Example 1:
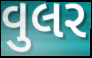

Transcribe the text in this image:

વુલર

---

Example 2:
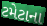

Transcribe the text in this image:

ટમેટાના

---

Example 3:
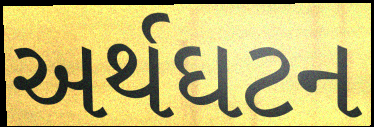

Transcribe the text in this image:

અર્થઘટન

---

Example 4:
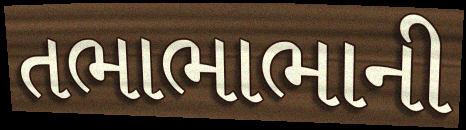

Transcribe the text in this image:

તભાભાભાની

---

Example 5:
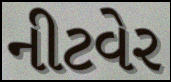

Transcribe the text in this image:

નીટવેર